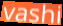
vashi